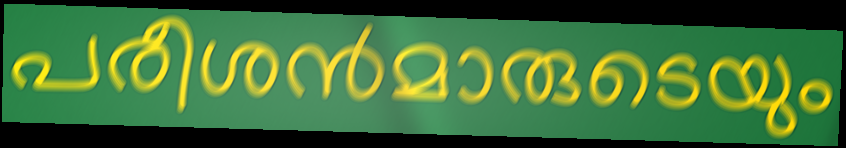
പരീശൻമാരുടെയും